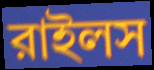
রাইলস